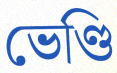
ভেণ্ডি